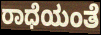
ರಾಧೆಯಂತೆ